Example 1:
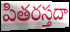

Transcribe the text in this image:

పితరస్తదా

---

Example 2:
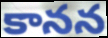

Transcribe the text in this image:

కానన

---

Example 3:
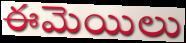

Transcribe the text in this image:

ఈమెయిలు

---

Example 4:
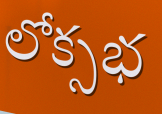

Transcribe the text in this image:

లోక్సభ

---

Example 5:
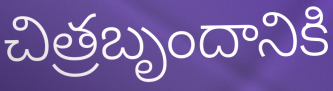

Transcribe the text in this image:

చిత్రబృందానికి